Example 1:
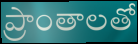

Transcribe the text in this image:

ప్రాంతాలతో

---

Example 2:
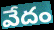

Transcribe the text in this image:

వేదం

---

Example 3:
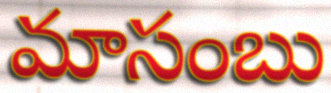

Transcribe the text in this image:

మాసంబు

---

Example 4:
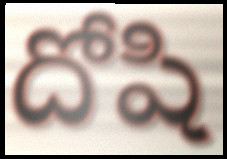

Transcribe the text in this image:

దోషి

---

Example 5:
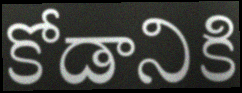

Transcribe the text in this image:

కోడానికి